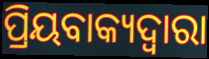
ପ୍ରିୟବାକ୍ୟଦ୍ୱାରା